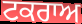
ਟਕਰਾਅ